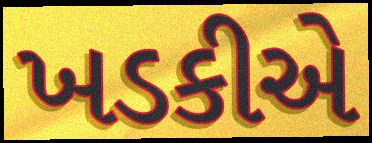
ખડકીએ